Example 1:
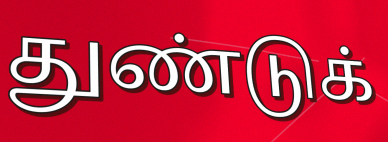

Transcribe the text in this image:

துண்டுக்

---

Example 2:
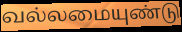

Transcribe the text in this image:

வல்லமையுண்டு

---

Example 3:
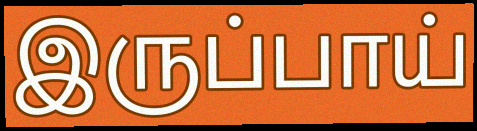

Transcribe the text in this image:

இருப்பாய்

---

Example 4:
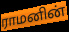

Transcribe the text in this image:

ராமனின்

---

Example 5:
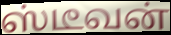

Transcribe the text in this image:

ஸ்டீவன்